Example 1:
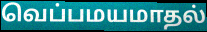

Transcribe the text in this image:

வெப்பமயமாதல்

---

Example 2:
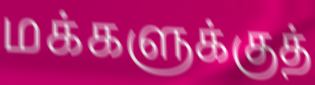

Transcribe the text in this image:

மக்களுக்குத்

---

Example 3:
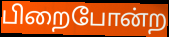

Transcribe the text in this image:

பிறைபோன்ற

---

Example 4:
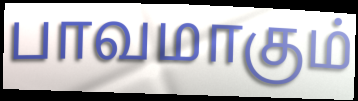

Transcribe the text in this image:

பாவமாகும்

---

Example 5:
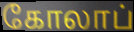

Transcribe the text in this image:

கோலாப்